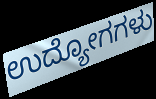
ಉದ್ಯೋಗಗಳು